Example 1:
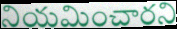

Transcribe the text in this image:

నియమించారని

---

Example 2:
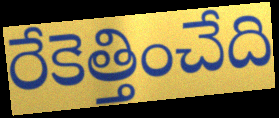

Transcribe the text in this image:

రేకెత్తించేది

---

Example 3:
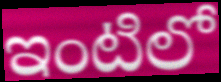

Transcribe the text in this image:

ఇంటిలో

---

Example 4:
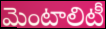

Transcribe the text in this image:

మెంటాలిటీ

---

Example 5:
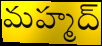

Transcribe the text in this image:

మహ్మద్